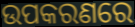
ଉପକରଣରେ